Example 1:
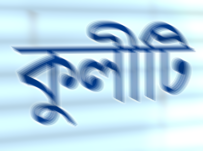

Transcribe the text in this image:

কুলীটি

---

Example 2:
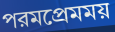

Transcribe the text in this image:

পরমপ্রেমময়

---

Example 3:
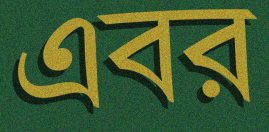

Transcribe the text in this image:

এবর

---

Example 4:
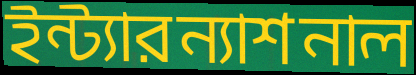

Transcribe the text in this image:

ইন্ট্যারন্যাশনাল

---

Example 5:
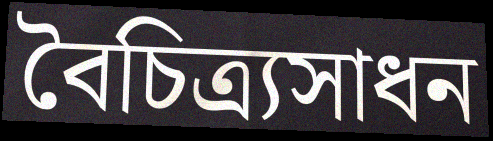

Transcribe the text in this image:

বৈচিত্র্যসাধন